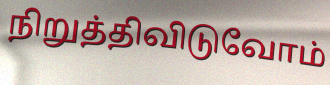
நிறுத்திவிடுவோம்